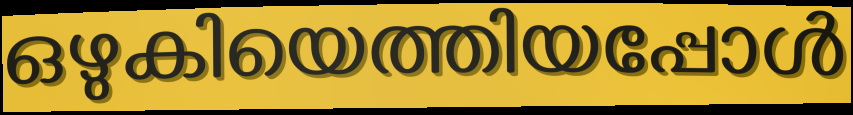
ഒഴുകിയെത്തിയപ്പോൾ